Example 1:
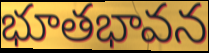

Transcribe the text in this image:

భూతభావన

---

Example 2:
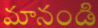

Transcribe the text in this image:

మానండి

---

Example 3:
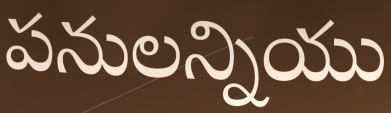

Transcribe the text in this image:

పనులన్నియు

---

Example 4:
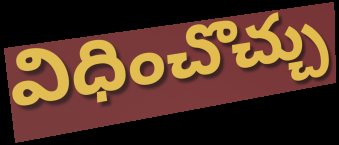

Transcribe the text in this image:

విధించొచ్చు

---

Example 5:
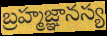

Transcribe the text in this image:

బ్రహ్మజ్ఞానస్య